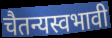
चैतन्यस्वभावी